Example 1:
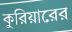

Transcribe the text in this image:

কুরিয়ারের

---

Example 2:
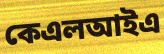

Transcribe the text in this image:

কেএলআইএ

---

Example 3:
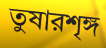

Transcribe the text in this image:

তুষারশৃঙ্গ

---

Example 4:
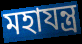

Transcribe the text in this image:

মহাযন্ত্র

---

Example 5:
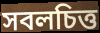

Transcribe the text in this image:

সবলচিত্ত